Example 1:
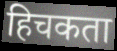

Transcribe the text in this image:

हिचकता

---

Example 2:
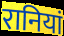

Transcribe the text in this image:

रानियां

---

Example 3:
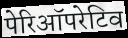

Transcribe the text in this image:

पेरिऑपरेटिव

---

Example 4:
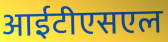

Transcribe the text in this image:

आईटीएसएल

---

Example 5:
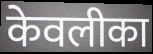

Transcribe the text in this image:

केवलीका